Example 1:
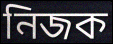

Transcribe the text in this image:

নিজক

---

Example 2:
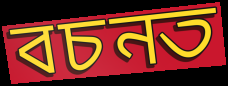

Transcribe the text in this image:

বচনত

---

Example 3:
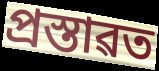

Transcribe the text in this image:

প্ৰস্তাৱত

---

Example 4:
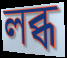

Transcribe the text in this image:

লব্ধ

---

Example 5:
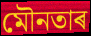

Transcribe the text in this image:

মৌনতাৰ